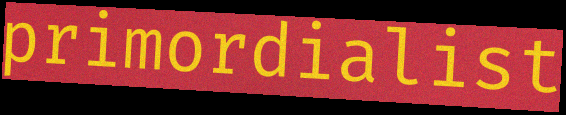
primordialist